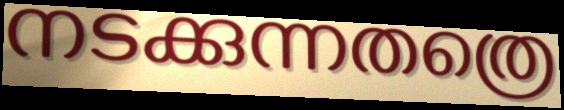
നടക്കുന്നതത്രെ